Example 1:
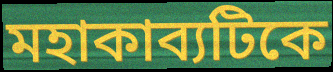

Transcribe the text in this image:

মহাকাব্যটিকে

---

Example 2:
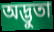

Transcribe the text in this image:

অদ্ভুতা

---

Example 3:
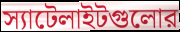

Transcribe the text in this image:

স্যাটেলাইটগুলোর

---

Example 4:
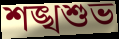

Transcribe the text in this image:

শঙ্খশুভ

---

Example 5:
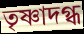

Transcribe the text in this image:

তৃষ্ণাদগ্ধ